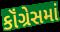
કૉંગ્રેસમાં